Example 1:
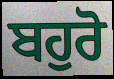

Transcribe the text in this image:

ਬਹੁਰੋ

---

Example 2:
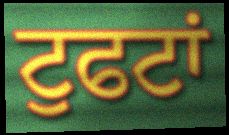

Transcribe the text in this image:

ਟੁਫਟਾਂ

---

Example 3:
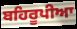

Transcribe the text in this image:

ਬਹਿਰੂਪੀਆ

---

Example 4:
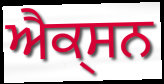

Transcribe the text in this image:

ਐਕ੍ਸਨ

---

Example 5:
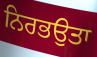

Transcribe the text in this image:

ਨਿਰਭਉਤਾ